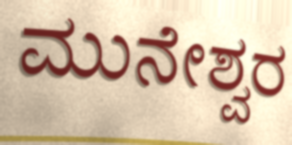
ಮುನೇಶ್ವರ